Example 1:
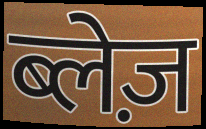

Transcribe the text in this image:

ब्लेज़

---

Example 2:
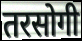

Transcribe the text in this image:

तरसोगी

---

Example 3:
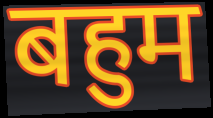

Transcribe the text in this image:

बहुम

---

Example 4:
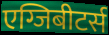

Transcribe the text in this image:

एग्जिबीटर्स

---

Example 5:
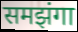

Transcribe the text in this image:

समझंगा